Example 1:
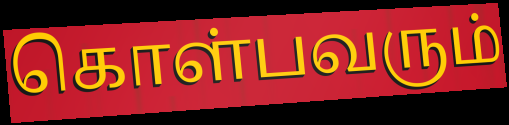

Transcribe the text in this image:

கொள்பவரும்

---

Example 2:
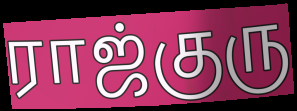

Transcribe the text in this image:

ராஜ்குரு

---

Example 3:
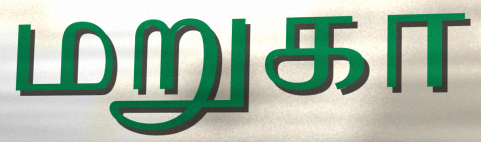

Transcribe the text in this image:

மறுகா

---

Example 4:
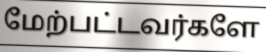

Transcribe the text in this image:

மேற்பட்டவர்களே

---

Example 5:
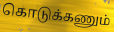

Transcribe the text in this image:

கொடுக்கணும்